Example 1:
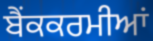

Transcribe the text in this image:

ਬੈਂਕਕਰਮੀਆਂ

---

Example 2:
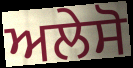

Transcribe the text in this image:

ਅਲੇਸੋ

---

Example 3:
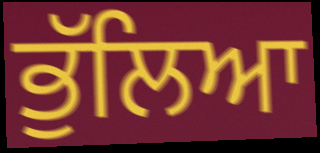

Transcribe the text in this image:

ਭੁੱਲਿਆ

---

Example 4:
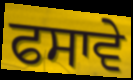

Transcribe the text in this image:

ਫਸਾਵੇ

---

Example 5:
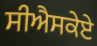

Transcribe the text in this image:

ਸੀਐਸਕੇਏ